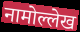
नामोल्लेख